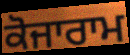
ਕੋਜਾਰਾਮ